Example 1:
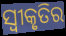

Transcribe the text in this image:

ସ୍ଵୀକୃତିର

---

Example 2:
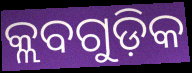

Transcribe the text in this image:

କ୍ଲବଗୁଡ଼ିକ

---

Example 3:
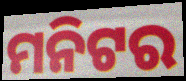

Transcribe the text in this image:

ମନିଟର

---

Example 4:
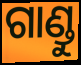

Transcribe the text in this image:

ଗାଣ୍ଡୁ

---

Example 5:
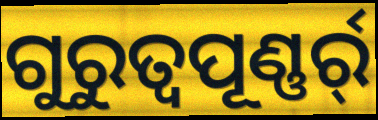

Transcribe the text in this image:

ଗୁରୁତ୍ୱପୂଣ୍ଣର୍ର୍